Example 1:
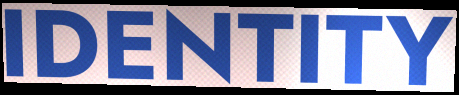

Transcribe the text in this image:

IDENTITY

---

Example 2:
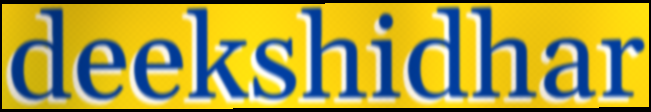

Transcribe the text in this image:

deekshidhar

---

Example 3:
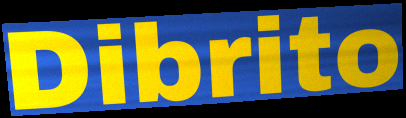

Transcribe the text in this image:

Dibrito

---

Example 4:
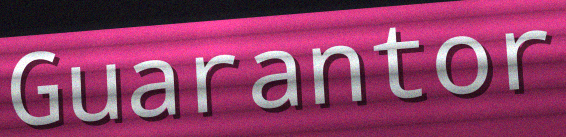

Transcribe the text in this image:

Guarantor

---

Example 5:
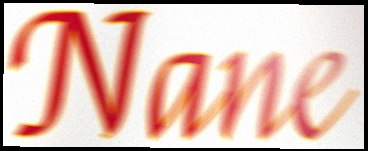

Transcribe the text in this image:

Nane